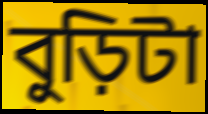
বুড়িটা